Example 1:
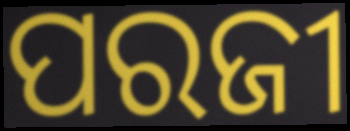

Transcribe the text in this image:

ପରଜୀ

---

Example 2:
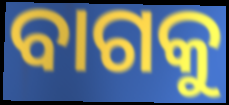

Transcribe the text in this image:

ବାଗକୁ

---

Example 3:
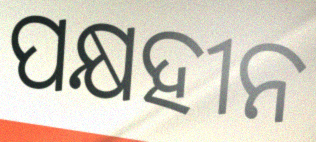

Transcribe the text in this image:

ପକ୍ଷହୀନ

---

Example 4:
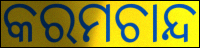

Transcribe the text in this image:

କରମଚାନ୍ଦ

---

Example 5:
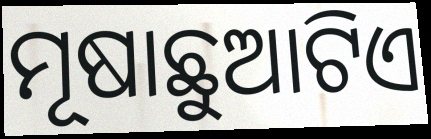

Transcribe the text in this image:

ମୂଷାଛୁଆଟିଏ